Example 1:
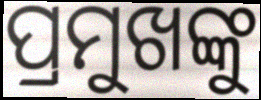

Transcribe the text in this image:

ପ୍ରମୁଖଙ୍କୁ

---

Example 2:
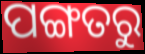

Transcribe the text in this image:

ପଙ୍ଗତରୁ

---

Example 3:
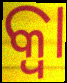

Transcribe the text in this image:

କ୍ଵା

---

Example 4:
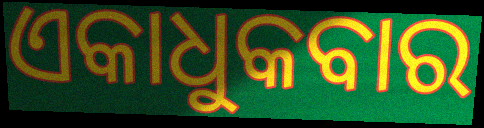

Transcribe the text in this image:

ଏକାଧୁକବାର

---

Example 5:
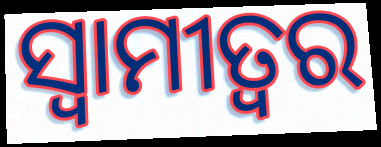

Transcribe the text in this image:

ସ୍ଵାମୀତ୍ୱର